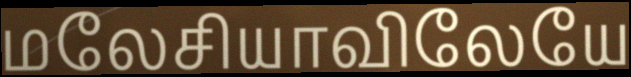
மலேசியாவிலேயே